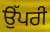
ਉੱਪਰੀ